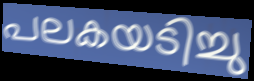
പലകയടിച്ചു